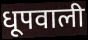
धूपवाली